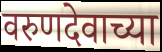
वरुणदेवाच्या